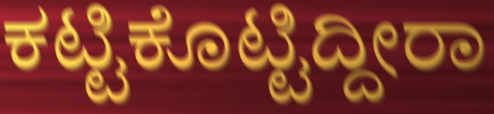
ಕಟ್ಟಿಕೊಟ್ಟಿದ್ದೀರಾ